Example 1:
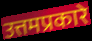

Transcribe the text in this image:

उत्तमप्रकारे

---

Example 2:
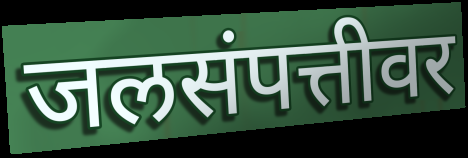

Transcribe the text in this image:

जलसंपत्तीवर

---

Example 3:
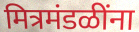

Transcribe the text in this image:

मित्रमंडळींना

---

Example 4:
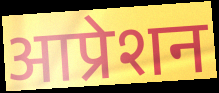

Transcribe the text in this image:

आप्रेशन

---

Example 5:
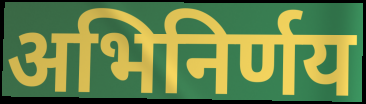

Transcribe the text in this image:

अभिनिर्णय